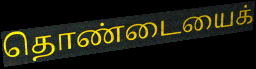
தொண்டையைக்